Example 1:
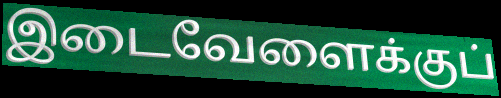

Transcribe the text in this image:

இடைவேளைக்குப்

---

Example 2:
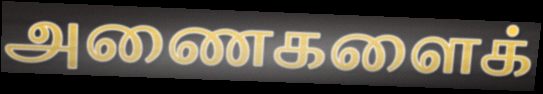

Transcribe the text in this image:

அணைகளைக்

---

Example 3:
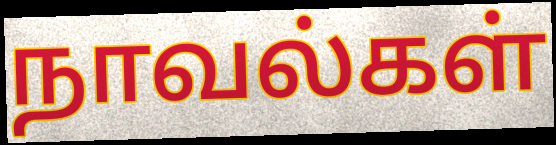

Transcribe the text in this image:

நாவல்கள்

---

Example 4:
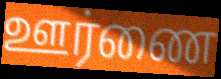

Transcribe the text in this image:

ஊர்ணை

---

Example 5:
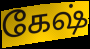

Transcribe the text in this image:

கேஷ்